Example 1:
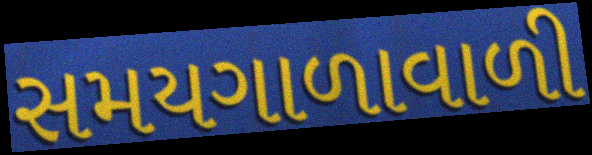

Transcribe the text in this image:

સમયગાળાવાળી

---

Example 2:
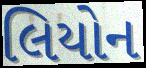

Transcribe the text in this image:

લિયોન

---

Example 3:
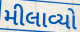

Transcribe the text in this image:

મીલાવ્યો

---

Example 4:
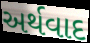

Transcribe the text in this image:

અર્થવાદ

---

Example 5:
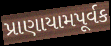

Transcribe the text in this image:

પ્રાણાયામપૂર્વક